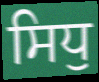
ਸਿਧੁ